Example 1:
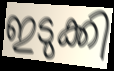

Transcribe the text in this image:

ഇടുക്കി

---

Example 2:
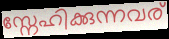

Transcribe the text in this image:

സ്നേഹിക്കുന്നവര്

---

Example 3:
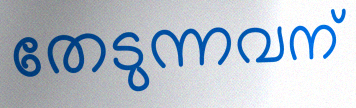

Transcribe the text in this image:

തേടുന്നവന്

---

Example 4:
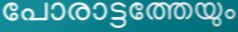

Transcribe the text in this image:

പോരാട്ടത്തേയും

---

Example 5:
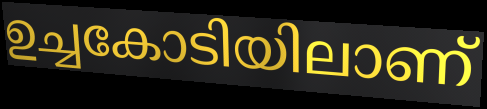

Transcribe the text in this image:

ഉച്ചകോടിയിലാണ്